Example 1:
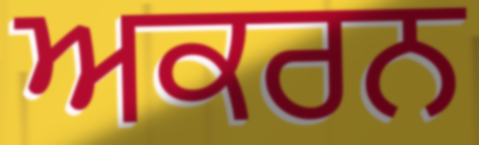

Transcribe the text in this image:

ਅਕਰਨ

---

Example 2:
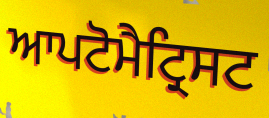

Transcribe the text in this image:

ਆਪਟੋਮੈਟ੍ਰਿਸਟ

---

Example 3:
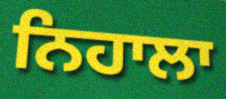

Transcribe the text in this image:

ਨਿਹਾਲਾ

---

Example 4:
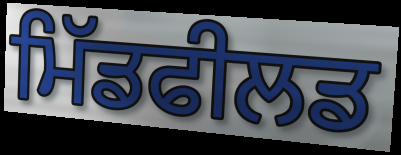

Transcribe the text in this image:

ਮਿੱਡਫੀਲਡ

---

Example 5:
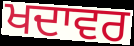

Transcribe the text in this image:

ਖਦਾਵਰ